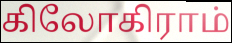
கிலோகிராம்